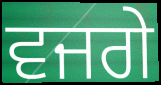
ਵਜਗੇ